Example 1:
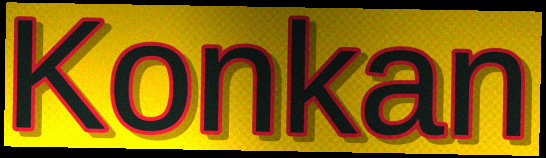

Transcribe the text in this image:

Konkan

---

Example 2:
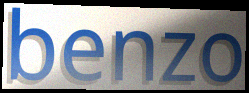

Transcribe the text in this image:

benzo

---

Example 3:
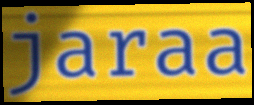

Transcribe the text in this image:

jaraa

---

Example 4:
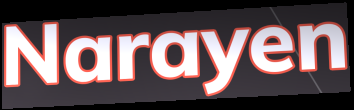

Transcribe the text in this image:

Narayen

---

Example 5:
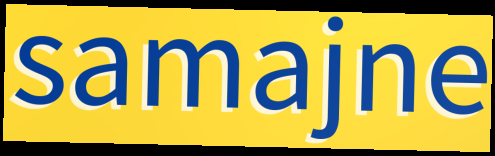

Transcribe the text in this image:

samajne